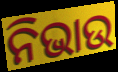
ନିଭାଉ